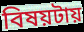
বিষয়টায়